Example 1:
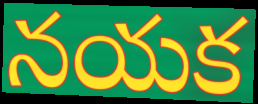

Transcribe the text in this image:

నయక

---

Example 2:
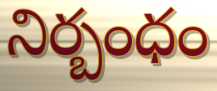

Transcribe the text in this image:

నిర్బంధం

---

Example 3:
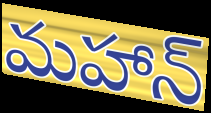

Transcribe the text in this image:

మహాన్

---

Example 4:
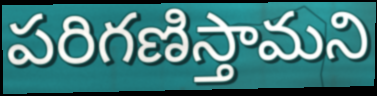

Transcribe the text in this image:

పరిగణిస్తామని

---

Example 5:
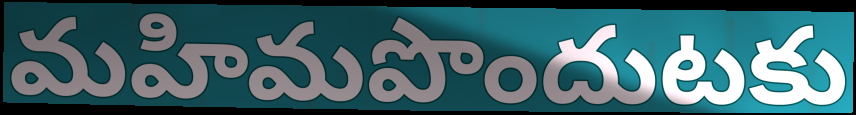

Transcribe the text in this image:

మహిమపొందుటకు